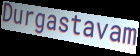
Durgastavam